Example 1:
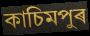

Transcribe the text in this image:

কাচিমপুৰ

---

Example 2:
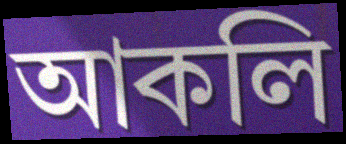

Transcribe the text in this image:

আকলি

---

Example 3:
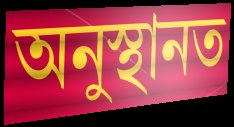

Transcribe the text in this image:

অনুস্থানত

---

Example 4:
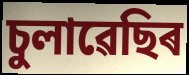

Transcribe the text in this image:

চুলাৱেছিৰ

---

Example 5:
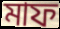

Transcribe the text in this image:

মাফ